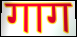
गाग